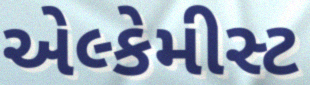
એલ્કેમીસ્ટ